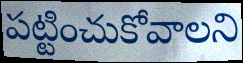
పట్టించుకోవాలని